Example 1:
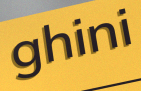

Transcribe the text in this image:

ghini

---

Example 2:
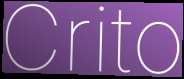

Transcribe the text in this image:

Crito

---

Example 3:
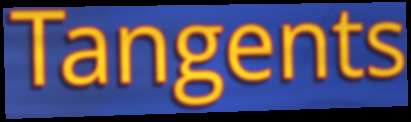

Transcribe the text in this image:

Tangents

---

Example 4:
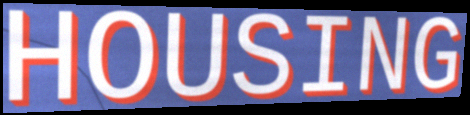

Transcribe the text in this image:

HOUSING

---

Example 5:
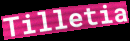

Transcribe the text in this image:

Tilletia